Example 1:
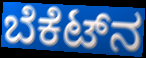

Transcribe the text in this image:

ಬೆಕೆಟ್‌ನ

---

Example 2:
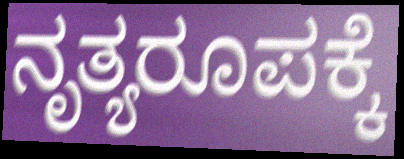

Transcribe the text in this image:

ನೃತ್ಯರೂಪಕ್ಕೆ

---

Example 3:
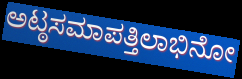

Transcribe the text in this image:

ಅಟ್ಠಸಮಾಪತ್ತಿಲಾಭಿನೋ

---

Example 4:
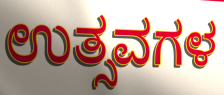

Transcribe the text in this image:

ಉತ್ಸವಗಳ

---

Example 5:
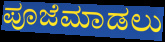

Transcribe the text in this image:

ಪೂಜೆಮಾಡಲು